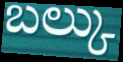
బల్కు